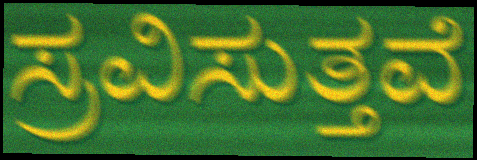
ಸ್ರವಿಸುತ್ತವೆ